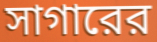
সাগারের